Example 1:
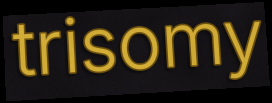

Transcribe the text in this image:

trisomy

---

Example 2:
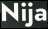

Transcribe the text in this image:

Nija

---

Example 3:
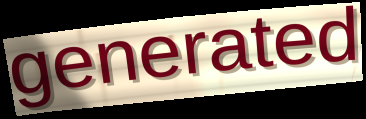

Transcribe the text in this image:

generated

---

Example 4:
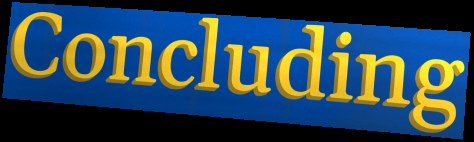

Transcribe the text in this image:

Concluding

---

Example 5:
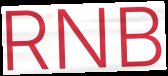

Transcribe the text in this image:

RNB